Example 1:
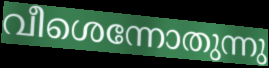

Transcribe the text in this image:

വീശെന്നോതുന്നു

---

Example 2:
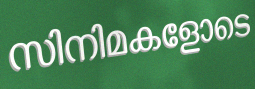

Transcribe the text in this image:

സിനിമകളോടെ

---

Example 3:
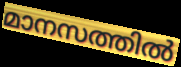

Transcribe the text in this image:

മാനസത്തിൽ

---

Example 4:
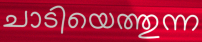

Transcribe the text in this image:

ചാടിയെത്തുന്ന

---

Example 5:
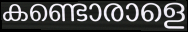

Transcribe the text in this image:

കണ്ടൊരാളെ